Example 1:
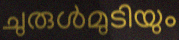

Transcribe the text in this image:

ചുരുൾമുടിയും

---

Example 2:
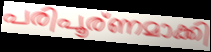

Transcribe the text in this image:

പരിപൂര്ണമാക്കി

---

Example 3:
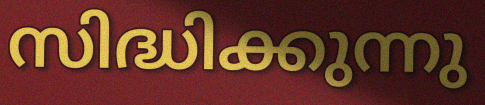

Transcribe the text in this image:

സിദ്ധിക്കുന്നു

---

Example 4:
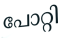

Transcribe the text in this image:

പോറ്റി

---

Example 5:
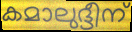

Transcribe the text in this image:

കമാലുദ്ദീന്